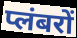
प्लंबरों